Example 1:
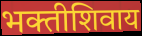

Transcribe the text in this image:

भक्तीशिवाय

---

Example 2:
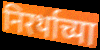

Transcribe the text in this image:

निरर्थाच्या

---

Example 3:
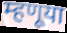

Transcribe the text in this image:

म्हणूया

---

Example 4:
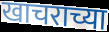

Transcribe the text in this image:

खाचराच्या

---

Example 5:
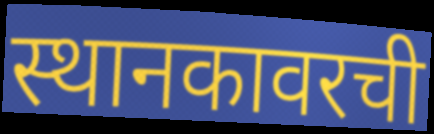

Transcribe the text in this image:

स्थानकावरची